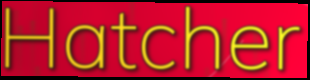
Hatcher